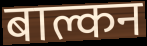
बाल्कन